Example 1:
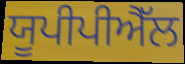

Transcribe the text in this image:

ਯੂਪੀਪੀਐੱਲ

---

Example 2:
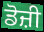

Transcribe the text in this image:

ਡੋਜ਼ੀ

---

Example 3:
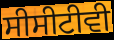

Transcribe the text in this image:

ਸੀਸੀਟੀਵੀ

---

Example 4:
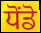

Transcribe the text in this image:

ਧੋਂਡੋ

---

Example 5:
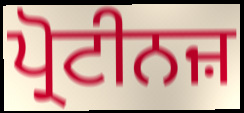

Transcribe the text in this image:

ਪ੍ਰੋਟੀਨਜ਼